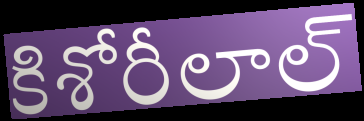
కిశోరీలాల్